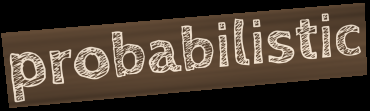
probabilistic